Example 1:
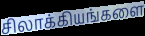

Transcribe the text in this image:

சிலாக்கியங்களை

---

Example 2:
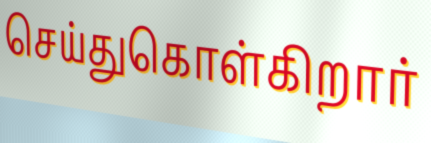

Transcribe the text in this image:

செய்துகொள்கிறார்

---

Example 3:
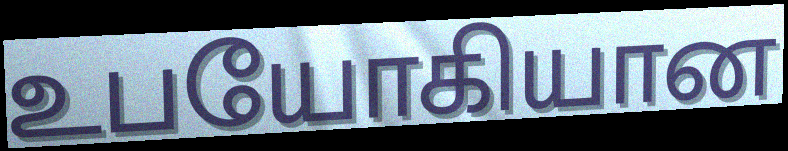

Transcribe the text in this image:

உபயோகியான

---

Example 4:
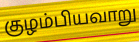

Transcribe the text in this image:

குழம்பியவாறு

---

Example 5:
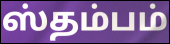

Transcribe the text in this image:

ஸ்தம்பம்